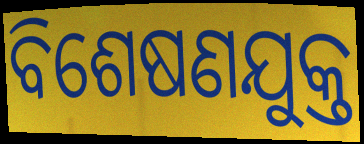
ବିଶେଷଣଯୁକ୍ତ